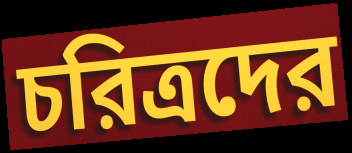
চরিত্রদের